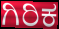
ಗಿರಿಕ